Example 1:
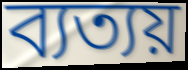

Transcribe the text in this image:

ব্যত্যয়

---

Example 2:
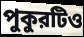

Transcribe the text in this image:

পুকুরটিও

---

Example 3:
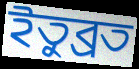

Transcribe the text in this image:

ইতুব্রত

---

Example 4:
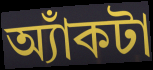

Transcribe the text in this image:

অ্যাঁকটা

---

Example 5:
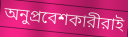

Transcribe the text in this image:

অনুপ্রবেশকারীরাই